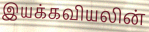
இயக்கவியலின்